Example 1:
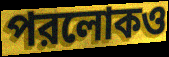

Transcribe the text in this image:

পরলোকও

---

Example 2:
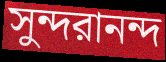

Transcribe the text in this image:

সুন্দরানন্দ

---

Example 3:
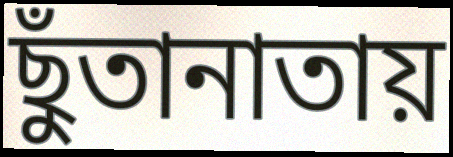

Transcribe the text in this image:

ছুঁতানাতায়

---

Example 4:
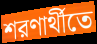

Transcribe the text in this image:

শরণার্থীতে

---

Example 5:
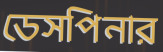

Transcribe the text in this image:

ডেসপিনার